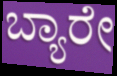
ಬ್ಯಾರೇ